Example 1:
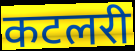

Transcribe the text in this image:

कटलरी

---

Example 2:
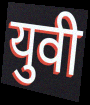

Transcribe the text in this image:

युवी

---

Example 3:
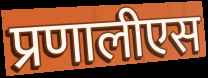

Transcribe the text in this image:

प्रणालीएस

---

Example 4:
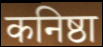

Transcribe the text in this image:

कनिष्ठा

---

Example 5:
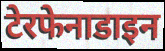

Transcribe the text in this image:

टेरफेनाडाइन